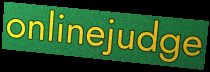
onlinejudge